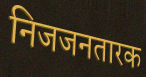
निजजनतारक